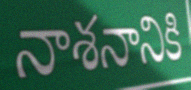
నాశనానికి